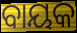
ବାୟକ